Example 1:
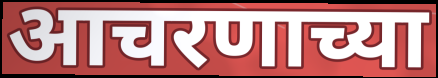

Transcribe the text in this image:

आचरणाच्या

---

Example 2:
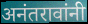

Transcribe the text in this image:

अनंतरावांनी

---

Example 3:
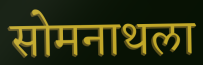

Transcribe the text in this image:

सोमनाथला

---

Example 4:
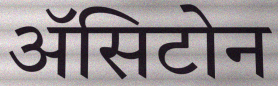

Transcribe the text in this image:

ॲसिटोन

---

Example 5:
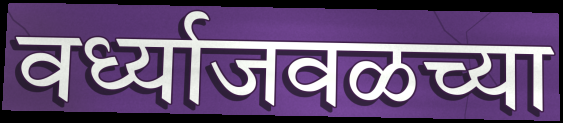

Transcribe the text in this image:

वर्ध्याजवळच्या